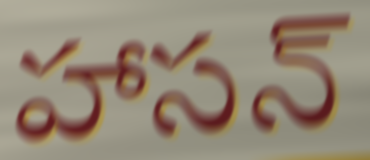
హాసన్